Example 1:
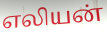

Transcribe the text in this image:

எலியன்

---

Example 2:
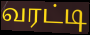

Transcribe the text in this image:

வரட்டி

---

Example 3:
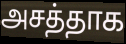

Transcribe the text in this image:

அசத்தாக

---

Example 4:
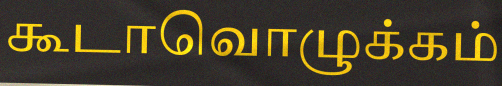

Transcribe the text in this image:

கூடாவொழுக்கம்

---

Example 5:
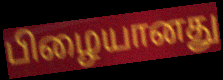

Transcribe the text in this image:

பிழையானது